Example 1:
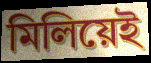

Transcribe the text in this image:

মিলিয়েই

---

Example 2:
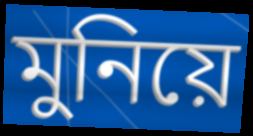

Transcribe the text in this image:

মুনিয়ে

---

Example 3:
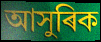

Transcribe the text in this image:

আসুৰিক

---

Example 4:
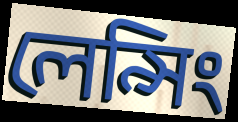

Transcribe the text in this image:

লেন্সিং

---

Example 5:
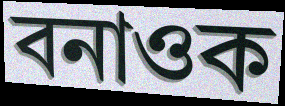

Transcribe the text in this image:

বনাওক